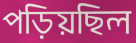
পড়িয়ছিল